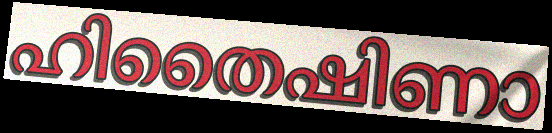
ഹിതൈഷിണാ